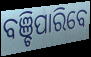
ବଞ୍ଚିପାରିବେ